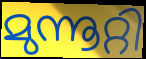
മുന്നൂറ്റി